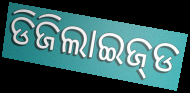
ଡିଜିଲାଇଜ୍‌ଡ